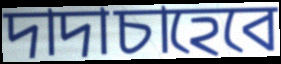
দাদাচাহেবে